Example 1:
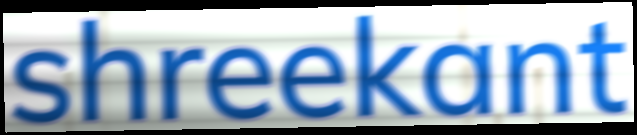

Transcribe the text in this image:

shreekant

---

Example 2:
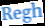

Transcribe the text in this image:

Regh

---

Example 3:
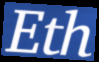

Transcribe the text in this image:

Eth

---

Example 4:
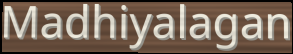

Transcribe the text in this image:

Madhiyalagan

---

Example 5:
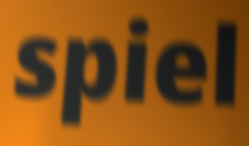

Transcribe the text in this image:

spiel